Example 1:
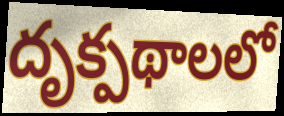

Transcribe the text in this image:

దృక్పథాలలో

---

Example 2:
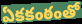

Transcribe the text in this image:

ఏకకంఠంతో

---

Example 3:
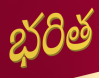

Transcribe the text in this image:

భరిత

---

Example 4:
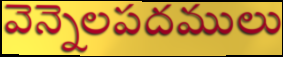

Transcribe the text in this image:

వెన్నెలపదములు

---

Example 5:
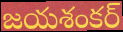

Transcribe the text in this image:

జయశంకర్